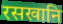
रसखानि